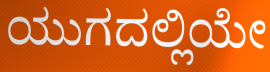
ಯುಗದಲ್ಲಿಯೇ